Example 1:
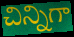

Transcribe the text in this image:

చిన్నిగా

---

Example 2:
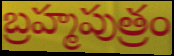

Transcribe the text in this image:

బ్రహ్మపుత్రం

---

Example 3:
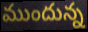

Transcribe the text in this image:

ముందున్న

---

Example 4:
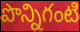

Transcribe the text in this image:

పొన్నిగంటి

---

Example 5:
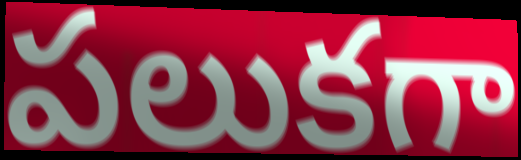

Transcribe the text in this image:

పలుకగా